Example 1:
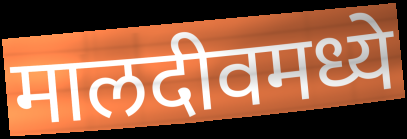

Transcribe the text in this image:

मालदीवमध्ये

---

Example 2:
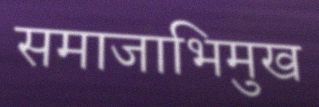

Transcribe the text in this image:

समाजाभिमुख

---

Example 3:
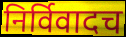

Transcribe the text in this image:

निर्विवादच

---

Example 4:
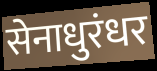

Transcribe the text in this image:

सेनाधुरंधर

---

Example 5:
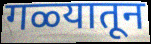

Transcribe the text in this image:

गळ्यातून